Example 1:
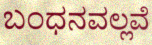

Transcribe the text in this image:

ಬಂಧನವಲ್ಲವೆ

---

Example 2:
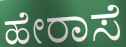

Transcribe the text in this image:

ಹೇರಾಸೆ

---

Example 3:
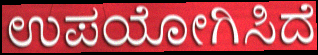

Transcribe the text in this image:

ಉಪಯೋಗಿಸಿದೆ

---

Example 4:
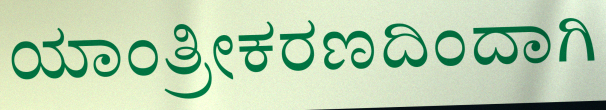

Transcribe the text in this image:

ಯಾಂತ್ರೀಕರಣದಿಂದಾಗಿ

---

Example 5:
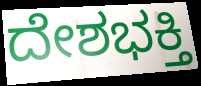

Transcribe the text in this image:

ದೇಶಭಕ್ತಿ